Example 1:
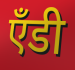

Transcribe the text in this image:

ऍंडी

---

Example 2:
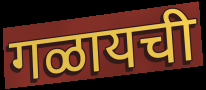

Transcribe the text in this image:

गळायची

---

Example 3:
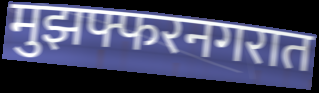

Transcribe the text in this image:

मुझफ्फरनगरात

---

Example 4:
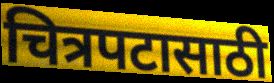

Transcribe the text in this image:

चित्रपटासाठी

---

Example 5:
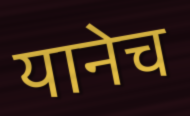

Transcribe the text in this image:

यानेच